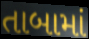
તાબામાં